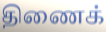
திணைக்